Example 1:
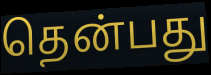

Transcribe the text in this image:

தென்பது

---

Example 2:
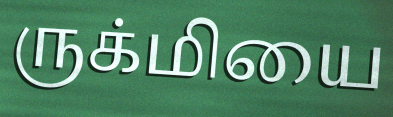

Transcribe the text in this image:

ருக்மியை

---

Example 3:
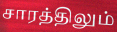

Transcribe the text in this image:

சாரத்திலும்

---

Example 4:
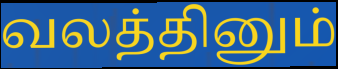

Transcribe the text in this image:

வலத்தினும்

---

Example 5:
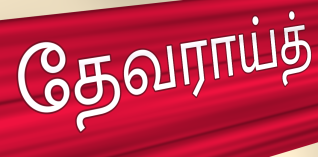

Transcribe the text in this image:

தேவராய்த்